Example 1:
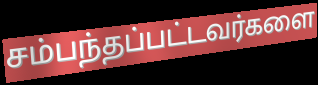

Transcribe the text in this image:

சம்பந்தப்பட்டவர்களை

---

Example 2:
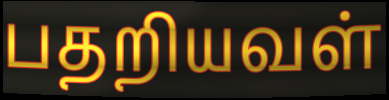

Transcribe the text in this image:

பதறியவள்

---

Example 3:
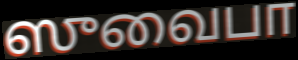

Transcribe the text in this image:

ஸுவைபா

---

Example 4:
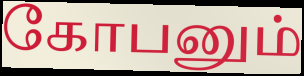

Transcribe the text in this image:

கோபனும்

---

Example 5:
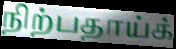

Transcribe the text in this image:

நிற்பதாய்க்